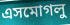
এসমোগলু